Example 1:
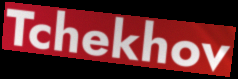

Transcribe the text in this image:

Tchekhov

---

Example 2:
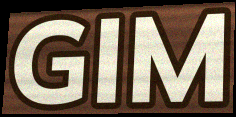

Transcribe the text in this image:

GIM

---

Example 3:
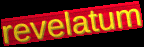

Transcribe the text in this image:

revelatum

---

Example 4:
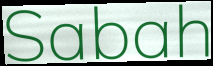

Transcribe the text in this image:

Sabah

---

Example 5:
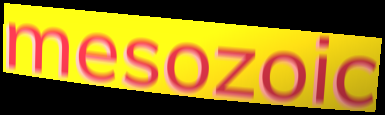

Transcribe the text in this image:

mesozoic